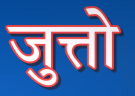
जुत्तो